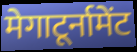
मेगाटूर्नामेंट